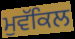
ਮੁਵੱਕਿਲ